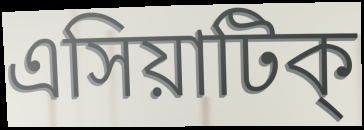
এসিয়াটিক্